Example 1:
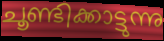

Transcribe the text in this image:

ചൂണ്ടിക്കാട്ടുന്നു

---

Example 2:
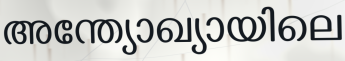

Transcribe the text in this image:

അന്ത്യോഖ്യായിലെ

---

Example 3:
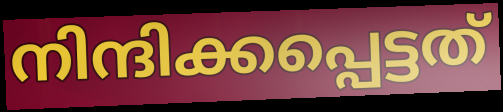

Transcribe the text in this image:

നിന്ദിക്കപ്പെട്ടത്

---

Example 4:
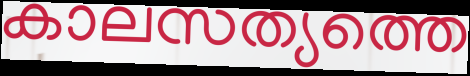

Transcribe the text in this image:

കാലസത്യത്തെ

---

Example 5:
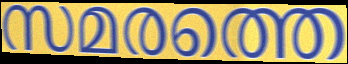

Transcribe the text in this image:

സമരത്തെ